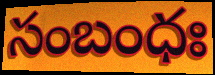
సంబంధః